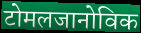
टोमलजानोविक